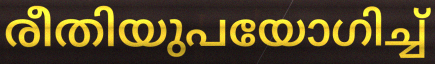
രീതിയുപയോഗിച്ച്